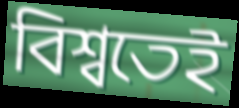
বিশ্বতেই